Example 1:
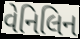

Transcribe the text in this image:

વેનિલિન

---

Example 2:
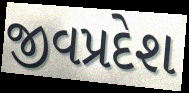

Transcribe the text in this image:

જીવપ્રદેશ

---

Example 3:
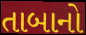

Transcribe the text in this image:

તાબાનો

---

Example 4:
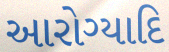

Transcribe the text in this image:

આરોગ્યાદિ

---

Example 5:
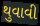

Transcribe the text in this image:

થુવાવી